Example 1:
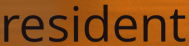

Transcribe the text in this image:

resident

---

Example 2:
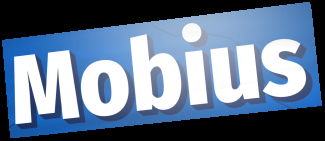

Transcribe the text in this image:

Mobius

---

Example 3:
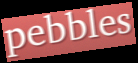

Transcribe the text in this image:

pebbles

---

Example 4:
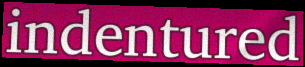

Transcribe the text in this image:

indentured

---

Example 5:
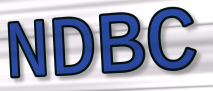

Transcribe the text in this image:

NDBC